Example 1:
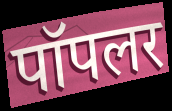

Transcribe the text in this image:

पॉपलर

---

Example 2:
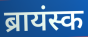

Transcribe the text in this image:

ब्रायंस्क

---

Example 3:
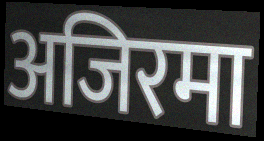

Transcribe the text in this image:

अजिरमा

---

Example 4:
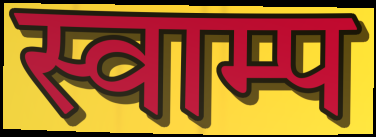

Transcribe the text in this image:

स्वाम्प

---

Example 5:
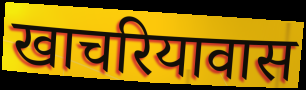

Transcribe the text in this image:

खाचरियावास